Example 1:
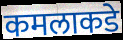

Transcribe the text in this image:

कमलाकडे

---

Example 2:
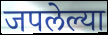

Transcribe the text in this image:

जपलेल्या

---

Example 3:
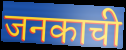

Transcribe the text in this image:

जनकाची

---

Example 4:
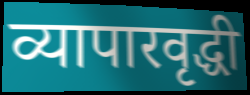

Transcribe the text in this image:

व्यापारवृद्धी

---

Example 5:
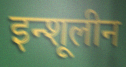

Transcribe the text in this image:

इन्शूलीन